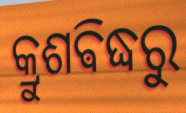
କ୍ରୁଶଵିଦ୍ଧରୁ